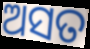
ଅସତ